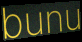
bunu